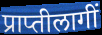
प्राप्तीलागीं